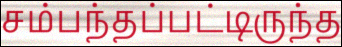
சம்பந்தப்பட்டிருந்த